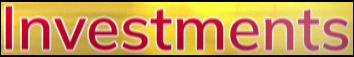
Investments